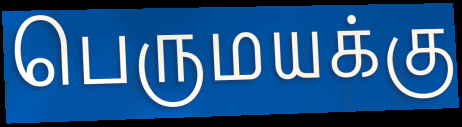
பெருமயக்கு